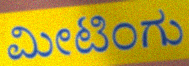
ಮೀಟಿಂಗು